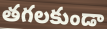
తగలకుండా